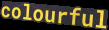
colourful